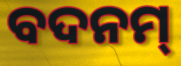
ବଦନମ୍